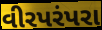
વીરપરંપરા